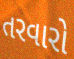
તરવારો